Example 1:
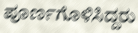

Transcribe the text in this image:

ಪೂರ್ಣಗೊಳಿಸಿದ್ದರು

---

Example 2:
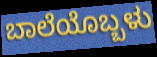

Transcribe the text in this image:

ಬಾಲೆಯೊಬ್ಬಳು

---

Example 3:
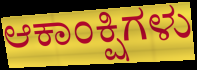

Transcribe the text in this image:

ಆಕಾಂಕ್ಷಿಗಳು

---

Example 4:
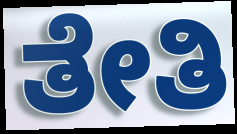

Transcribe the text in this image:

ತೇತಿ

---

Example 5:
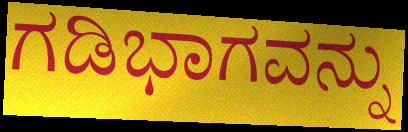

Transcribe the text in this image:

ಗಡಿಭಾಗವನ್ನು